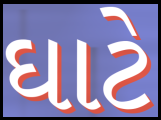
ઘાટે